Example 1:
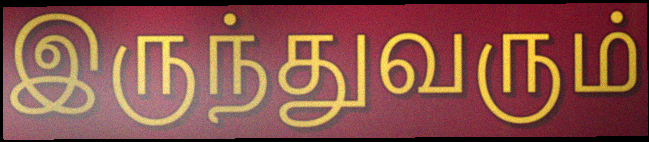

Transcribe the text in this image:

இருந்துவரும்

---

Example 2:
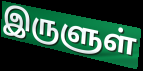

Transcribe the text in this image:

இருளுள்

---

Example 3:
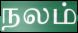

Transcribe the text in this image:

நலம்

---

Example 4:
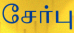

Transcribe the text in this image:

சேர்பு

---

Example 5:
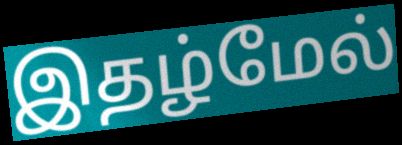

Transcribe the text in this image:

இதழ்மேல்